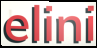
elini